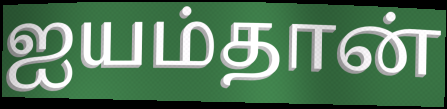
ஐயம்தான்